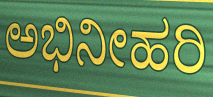
ಅಭಿನೀಹರಿ